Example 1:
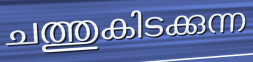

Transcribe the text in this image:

ചത്തുകിടക്കുന്ന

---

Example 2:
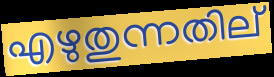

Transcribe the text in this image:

എഴുതുന്നതില്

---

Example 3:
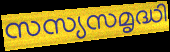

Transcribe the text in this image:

സസ്യസമൃദ്ധി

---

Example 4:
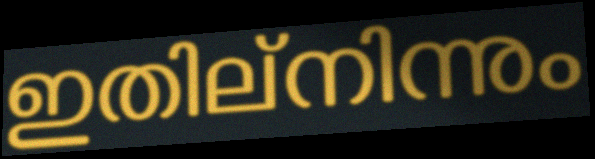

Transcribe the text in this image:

ഇതില്നിന്നും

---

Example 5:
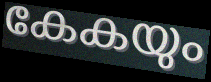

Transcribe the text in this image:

കേകയും